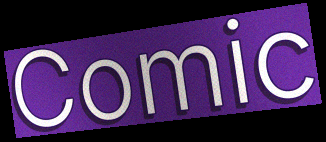
Comic